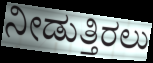
ನೀಡುತ್ತಿರಲು